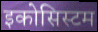
इकोसिस्टम